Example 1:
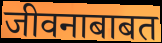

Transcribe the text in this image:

जीवनाबाबत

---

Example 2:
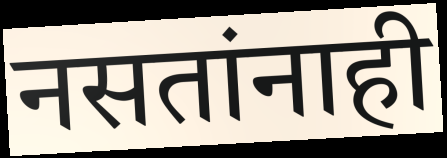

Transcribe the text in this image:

नसतांनाही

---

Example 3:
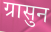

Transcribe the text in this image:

ग्रासुन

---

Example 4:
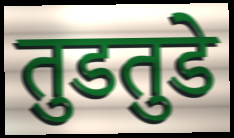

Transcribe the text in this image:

तुडतुडे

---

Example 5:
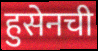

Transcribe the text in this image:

हुसेनची